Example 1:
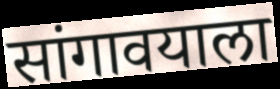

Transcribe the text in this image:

सांगावयाला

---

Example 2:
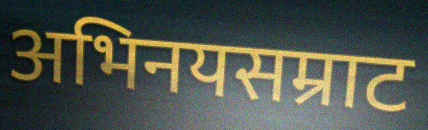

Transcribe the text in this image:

अभिनयसम्राट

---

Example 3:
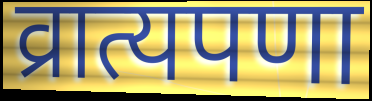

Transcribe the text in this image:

व्रात्यपणा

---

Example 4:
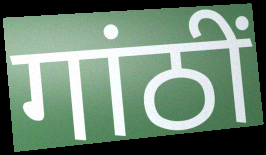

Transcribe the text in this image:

गांठीं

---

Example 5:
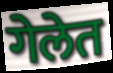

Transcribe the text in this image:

गेलेत